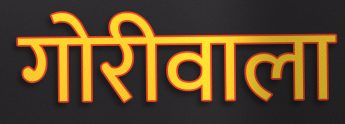
गोरीवाला